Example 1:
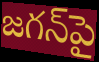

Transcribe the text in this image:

జగన్‌పై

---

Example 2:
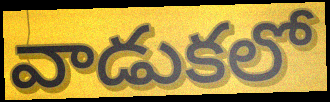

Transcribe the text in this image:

వాడుకలో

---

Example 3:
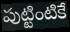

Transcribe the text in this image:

పుట్టింటికే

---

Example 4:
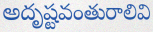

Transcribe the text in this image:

అదృష్టవంతురాలివి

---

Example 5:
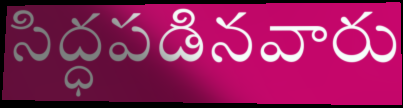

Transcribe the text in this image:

సిద్ధపడినవారు